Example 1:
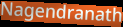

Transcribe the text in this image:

Nagendranath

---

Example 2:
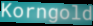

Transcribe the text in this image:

Korngold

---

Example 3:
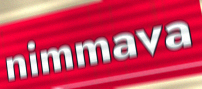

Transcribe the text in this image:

nimmava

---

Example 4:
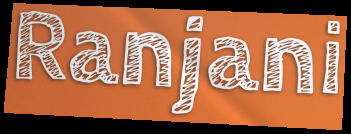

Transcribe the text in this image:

Ranjani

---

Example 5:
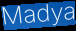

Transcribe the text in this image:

Madya